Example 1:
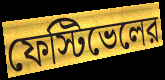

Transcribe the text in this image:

ফেস্টিভেলের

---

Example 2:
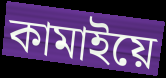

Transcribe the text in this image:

কামাইয়ে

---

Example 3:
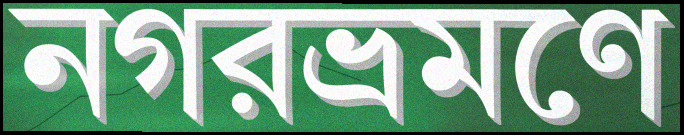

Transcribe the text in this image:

নগরভ্রমণে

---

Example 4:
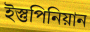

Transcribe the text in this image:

ইস্তুপিনিয়ান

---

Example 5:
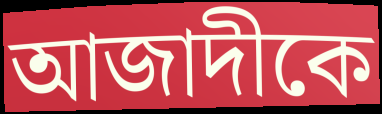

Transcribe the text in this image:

আজাদীকে